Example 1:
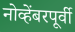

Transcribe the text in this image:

नोव्हेंबरपूर्वी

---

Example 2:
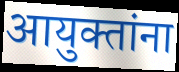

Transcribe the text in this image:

आयुक्‍तांना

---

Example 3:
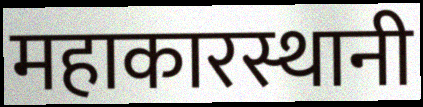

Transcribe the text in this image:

महाकारस्थानी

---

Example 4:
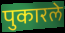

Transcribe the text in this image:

पुकारले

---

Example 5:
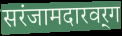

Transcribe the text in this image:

सरंजामदारवर्ग